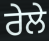
ਰੇਲੇ